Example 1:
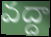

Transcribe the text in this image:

వద్దా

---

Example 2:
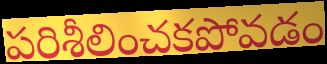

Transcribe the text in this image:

పరిశీలించకపోవడం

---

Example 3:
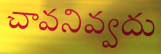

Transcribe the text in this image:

చావనివ్వదు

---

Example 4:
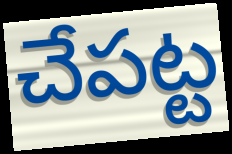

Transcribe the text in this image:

చేపట్ట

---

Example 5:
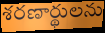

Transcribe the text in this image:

శరణార్థులను